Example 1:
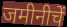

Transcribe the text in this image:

जमीनीचें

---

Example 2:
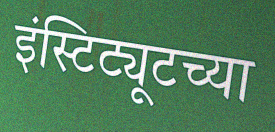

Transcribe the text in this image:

इंस्टिट्यूटच्या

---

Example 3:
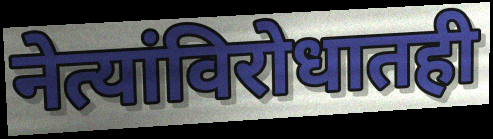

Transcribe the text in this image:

नेत्यांविरोधातही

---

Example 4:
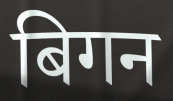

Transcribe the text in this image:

बिगन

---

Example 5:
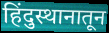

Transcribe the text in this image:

हिंदुस्थानातून